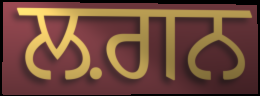
ਲ਼ਗਨ